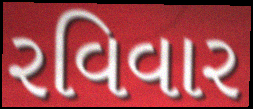
રવિવાર